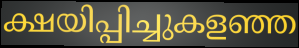
ക്ഷയിപ്പിച്ചുകളഞ്ഞ